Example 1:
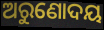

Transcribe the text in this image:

ଅରୁଣୋଦୟ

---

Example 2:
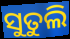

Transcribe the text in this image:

ସୁତୁଲି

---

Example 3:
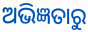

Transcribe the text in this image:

ଅଭିଜ୍ଞତାରୁ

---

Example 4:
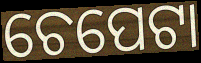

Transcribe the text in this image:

ଚେପେଟା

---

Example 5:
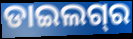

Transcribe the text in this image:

ଡାଇଲଗ୍‌ର